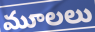
మూలలు